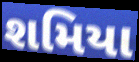
શમિયા